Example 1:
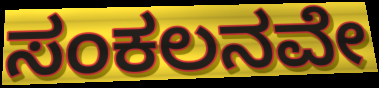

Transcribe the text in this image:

ಸಂಕಲನವೇ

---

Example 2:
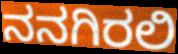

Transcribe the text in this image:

ನನಗಿರಲಿ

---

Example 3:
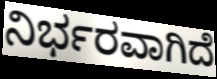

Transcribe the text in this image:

ನಿರ್ಭರವಾಗಿದೆ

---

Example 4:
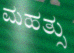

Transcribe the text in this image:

ಮಹತ್ಸು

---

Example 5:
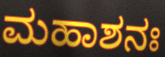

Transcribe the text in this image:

ಮಹಾಶನಃ